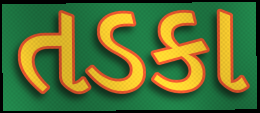
તડકા